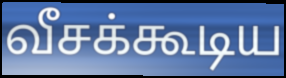
வீசக்கூடிய